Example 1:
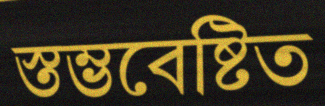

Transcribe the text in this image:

স্তম্ভবেষ্টিত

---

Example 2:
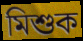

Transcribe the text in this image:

মিশুক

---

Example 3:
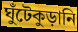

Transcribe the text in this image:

ঘুঁটেকুড়ানি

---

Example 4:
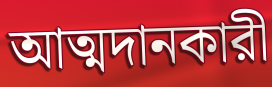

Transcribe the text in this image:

আত্মদানকারী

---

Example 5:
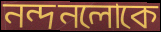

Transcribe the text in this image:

নন্দনলোকে